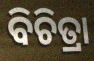
ବିଚିତ୍ରା